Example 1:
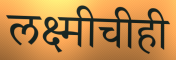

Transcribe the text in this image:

लक्ष्मीचीही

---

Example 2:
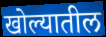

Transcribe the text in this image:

खोल्यातील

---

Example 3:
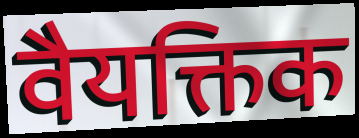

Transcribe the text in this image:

वैयक्तिक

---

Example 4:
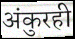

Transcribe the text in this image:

अंकुरही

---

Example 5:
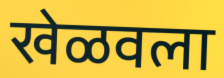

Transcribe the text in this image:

खेळवला